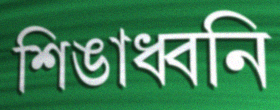
শিঙাধ্বনি